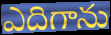
ఎదిగాను